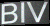
BIV